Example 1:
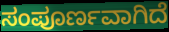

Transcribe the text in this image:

ಸಂಪೂರ್ಣವಾಗಿದೆ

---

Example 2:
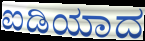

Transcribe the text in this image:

ಐಡಿಯಾದ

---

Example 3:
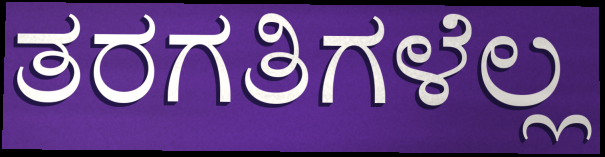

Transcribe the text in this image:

ತರಗತಿಗಳೆಲ್ಲ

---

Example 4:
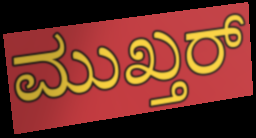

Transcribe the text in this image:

ಮುಖ್ತರ್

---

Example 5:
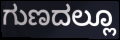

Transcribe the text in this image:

ಗುಣದಲ್ಲೂ